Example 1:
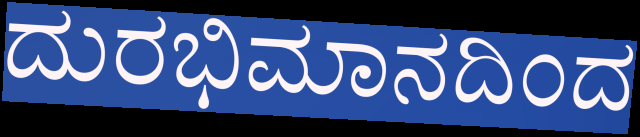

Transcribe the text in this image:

ದುರಭಿಮಾನದಿಂದ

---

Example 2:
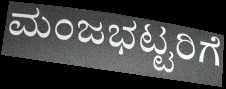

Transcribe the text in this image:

ಮಂಜಭಟ್ಟರಿಗೆ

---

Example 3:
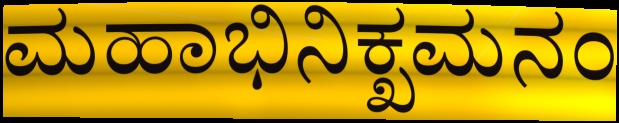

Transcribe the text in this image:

ಮಹಾಭಿನಿಕ್ಖಮನಂ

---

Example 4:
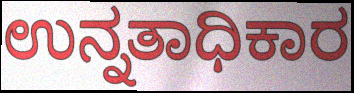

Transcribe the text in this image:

ಉನ್ನತಾಧಿಕಾರ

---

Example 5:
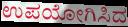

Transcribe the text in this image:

ಉಪಯೋಗಿಸಿದ